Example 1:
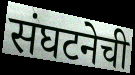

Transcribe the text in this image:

संघटनेची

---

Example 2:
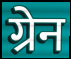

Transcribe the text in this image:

ग्रेन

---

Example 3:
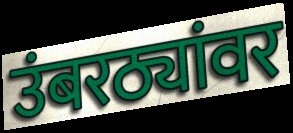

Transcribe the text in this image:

उंबरठ्यांवर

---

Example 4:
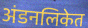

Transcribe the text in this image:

अंडनलिकेत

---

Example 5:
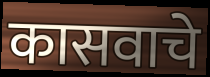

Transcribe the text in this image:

कासवाचे